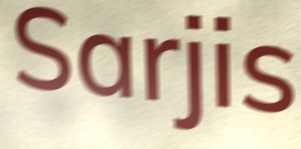
Sarjis